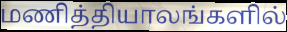
மணித்தியாலங்களில்